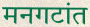
मनगटांत